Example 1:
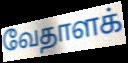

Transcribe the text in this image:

வேதாளக்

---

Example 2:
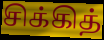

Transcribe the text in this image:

சிக்கித்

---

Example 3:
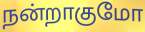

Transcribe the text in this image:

நன்றாகுமோ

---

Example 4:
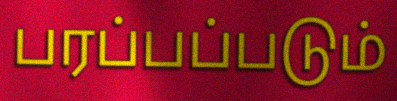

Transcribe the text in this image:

பரப்பப்படும்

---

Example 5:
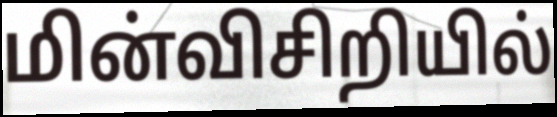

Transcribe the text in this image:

மின்விசிறியில்